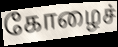
கோழைச்